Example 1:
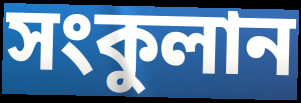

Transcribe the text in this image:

সংকুলান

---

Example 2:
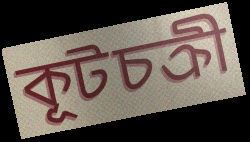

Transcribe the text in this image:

কূটচক্রী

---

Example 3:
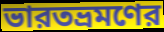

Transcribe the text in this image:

ভারতভ্রমণের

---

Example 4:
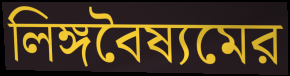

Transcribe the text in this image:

লিঙ্গবৈষ্যমের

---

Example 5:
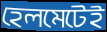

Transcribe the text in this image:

হেলমেটেই